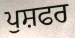
ਪੁਸ਼ਫਰ